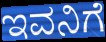
ಇವನಿಗೆ